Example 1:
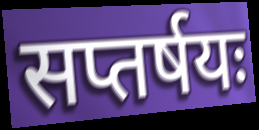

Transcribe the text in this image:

सप्तर्षयः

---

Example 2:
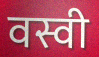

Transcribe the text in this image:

वस्वी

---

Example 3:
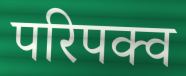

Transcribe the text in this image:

परिपक्व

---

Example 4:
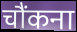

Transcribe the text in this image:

चौंकना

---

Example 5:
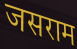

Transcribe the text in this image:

जसराम